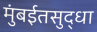
मुंबईतसुद्धा